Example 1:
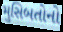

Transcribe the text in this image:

મુસિબતોનો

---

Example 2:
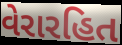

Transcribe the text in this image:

વેરારહિત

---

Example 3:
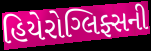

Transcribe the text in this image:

હિયેરોગ્લિફ્સની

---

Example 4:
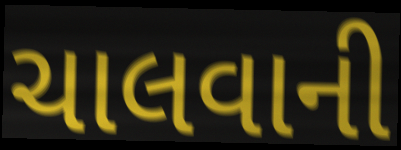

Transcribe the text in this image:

ચાલવાની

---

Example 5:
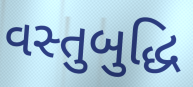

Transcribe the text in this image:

વસ્તુબુદ્ધિ